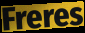
Freres